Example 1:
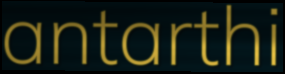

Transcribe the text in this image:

antarthi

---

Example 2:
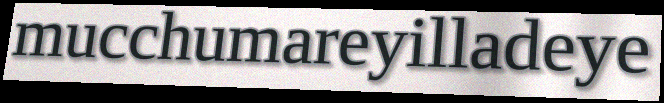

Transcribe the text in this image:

mucchumareyilladeye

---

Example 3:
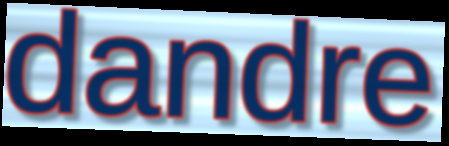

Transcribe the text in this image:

dandre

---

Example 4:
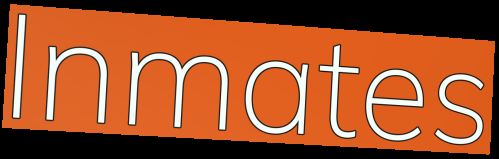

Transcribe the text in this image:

Inmates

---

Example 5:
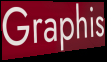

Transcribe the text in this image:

Graphis